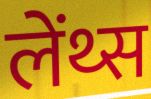
लेंथ्स